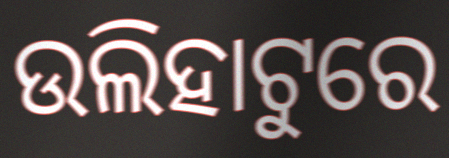
ଉଲିହାଟୁରେ